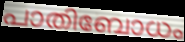
പാതിബോധം